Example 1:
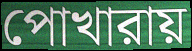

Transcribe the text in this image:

পোখারায়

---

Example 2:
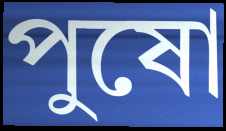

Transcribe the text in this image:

পুষো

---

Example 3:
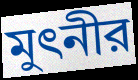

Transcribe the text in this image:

মুৎনীর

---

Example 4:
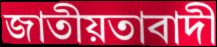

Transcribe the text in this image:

জাতীয়তাবাদী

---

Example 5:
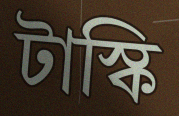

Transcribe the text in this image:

টাস্কি